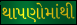
થાપણોમાંથી